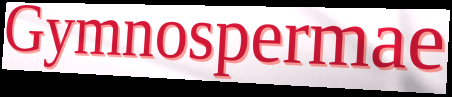
Gymnospermae